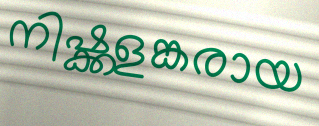
നിഷ്ക്കളങ്കരായ